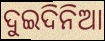
ଦୁଇଦିନିଆ